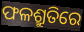
ଫଳଶ୍ରୁତିରେ